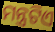
ମନ୍ତ୍ରଟିଏ